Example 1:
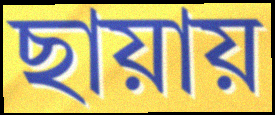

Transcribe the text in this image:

ছায়ায়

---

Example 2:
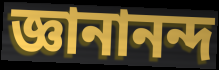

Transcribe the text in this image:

জ্ঞানানন্দ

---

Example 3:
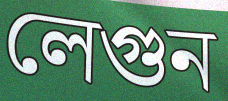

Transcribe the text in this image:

লেগুন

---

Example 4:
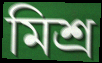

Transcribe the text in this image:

মিশ্র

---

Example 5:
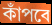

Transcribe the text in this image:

কাঁপবে